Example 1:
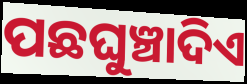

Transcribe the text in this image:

ପଛଘୁଞ୍ଚାଦିଏ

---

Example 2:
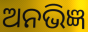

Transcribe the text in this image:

ଅନଭିଜ୍ଞ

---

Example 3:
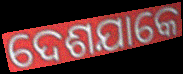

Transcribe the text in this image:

ଦେଶଯାକେ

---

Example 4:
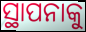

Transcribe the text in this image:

ସ୍ଥାପନାକୁ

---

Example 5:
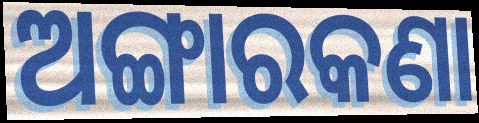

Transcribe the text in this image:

ଅଙ୍ଗାରକଣା